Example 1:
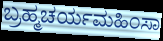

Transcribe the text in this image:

ಬ್ರಹ್ಮಚರ್ಯಮಹಿಂಸಾ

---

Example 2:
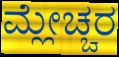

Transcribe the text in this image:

ಮ್ಲೇಚ್ಚರ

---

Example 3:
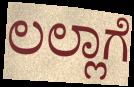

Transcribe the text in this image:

ಲಲ್ಲಾಗೆ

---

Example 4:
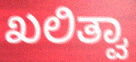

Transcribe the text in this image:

ಖಲಿತ್ವಾ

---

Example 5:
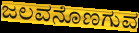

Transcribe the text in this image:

ಜಲವನೊಣಗುವ